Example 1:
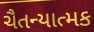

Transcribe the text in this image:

ચૈતન્યાત્મક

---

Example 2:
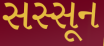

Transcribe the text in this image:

સસ્સૂન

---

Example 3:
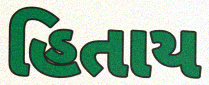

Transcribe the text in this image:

હિતાય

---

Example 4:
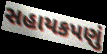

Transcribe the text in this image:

સહાયકપણું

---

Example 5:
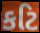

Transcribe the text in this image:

કટિ